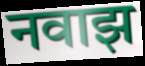
नवाझ